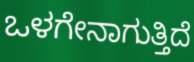
ಒಳಗೇನಾಗುತ್ತಿದೆ